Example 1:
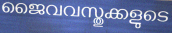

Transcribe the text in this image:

ജൈവവസ്തുക്കളുടെ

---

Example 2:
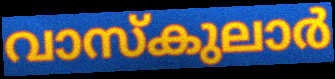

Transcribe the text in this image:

വാസ്കുലാർ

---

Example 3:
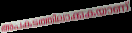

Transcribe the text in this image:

അപകടത്തിലാക്കുകയാണ്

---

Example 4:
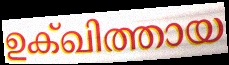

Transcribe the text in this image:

ഉക്ഖിത്തായ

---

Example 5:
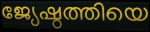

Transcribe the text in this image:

ജ്യേഷ്ഠത്തിയെ